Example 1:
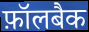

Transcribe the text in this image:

फ़ॉलबैक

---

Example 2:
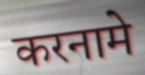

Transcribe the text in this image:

करनामे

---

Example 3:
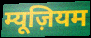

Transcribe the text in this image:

म्यूज़ियम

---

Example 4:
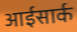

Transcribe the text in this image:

आईसार्क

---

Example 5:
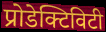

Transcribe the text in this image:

प्रोडेक्टिविटी